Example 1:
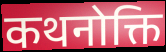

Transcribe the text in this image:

कथनोक्ति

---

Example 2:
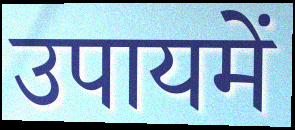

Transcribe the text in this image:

उपायमें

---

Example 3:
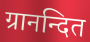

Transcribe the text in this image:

ग्रानन्दित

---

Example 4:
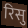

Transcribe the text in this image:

रिसु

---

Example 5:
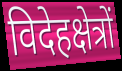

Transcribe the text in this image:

विदेहक्षेत्रों